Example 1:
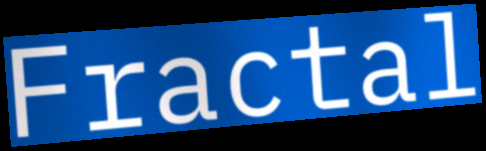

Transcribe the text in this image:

Fractal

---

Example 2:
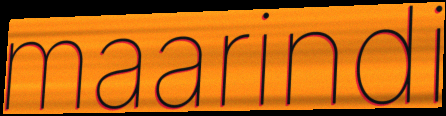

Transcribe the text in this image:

maarindi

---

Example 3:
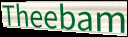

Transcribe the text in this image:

Theebam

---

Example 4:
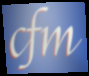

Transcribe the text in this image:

cfm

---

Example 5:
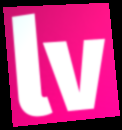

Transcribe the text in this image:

lv